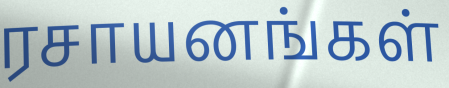
ரசாயனங்கள்